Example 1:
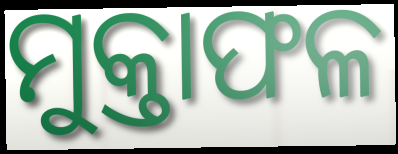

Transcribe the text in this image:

ମୁକ୍ତାଫଳ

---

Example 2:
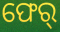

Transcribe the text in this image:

ଫେର୍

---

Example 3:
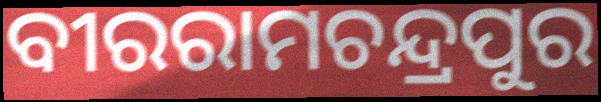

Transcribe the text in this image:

ବୀରରାମଚନ୍ଦ୍ରପୁର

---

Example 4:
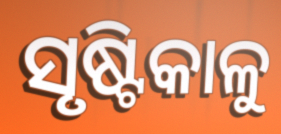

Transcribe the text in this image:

ସୃଷ୍ଟିକାଳୁ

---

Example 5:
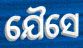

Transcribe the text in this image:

ଯୈସେ